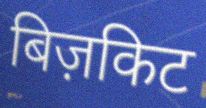
बिज़किट